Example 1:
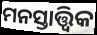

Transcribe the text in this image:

ମନସ୍ତାତ୍ତ୍ଵିକ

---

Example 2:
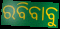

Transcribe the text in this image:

ରବିବାବୁ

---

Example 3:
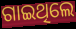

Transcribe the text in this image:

ଗାଇଥିଲେ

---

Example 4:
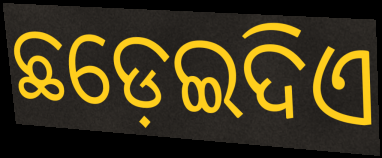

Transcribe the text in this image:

ଛଡ଼େଇଦିଏ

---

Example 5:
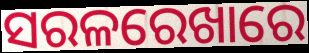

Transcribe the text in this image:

ସରଳରେଖାରେ